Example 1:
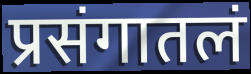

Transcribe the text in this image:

प्रसंगातलं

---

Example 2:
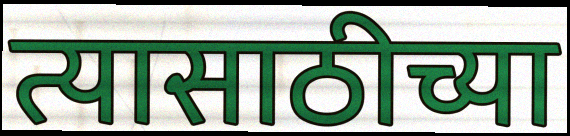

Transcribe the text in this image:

त्यासाठीच्या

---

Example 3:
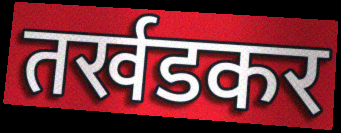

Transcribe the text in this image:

तर्खडकर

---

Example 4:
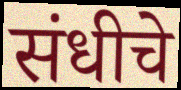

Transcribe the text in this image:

संधीचे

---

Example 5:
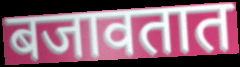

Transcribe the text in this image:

बजावतात